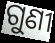
ଗୁଣୀ